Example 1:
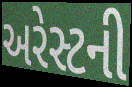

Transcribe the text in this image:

અરેસ્ટની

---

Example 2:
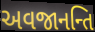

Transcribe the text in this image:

અવજાનન્તિ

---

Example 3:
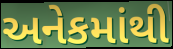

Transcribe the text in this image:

અનેકમાંથી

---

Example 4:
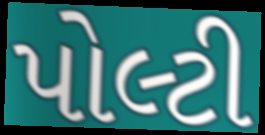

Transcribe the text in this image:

પોલ્ટી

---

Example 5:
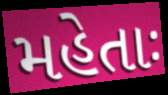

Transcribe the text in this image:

મહેતાઃ